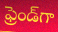
ఫ్రెండ్‌గా